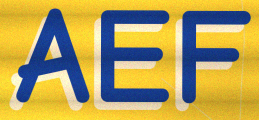
AEF